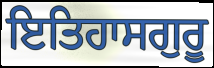
ਇਤਿਹਾਸਗੁਰੂ